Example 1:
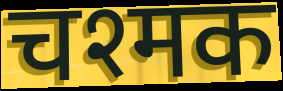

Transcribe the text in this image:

चश्मक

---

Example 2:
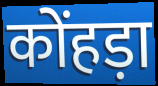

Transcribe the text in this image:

कोंहड़ा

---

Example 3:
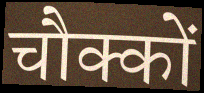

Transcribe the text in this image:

चौक्कों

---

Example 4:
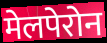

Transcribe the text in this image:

मेलपेरोन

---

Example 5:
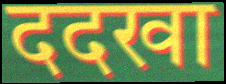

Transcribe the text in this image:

ददखा